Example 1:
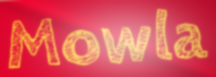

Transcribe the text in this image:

Mowla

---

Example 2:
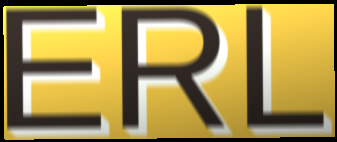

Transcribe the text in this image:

ERL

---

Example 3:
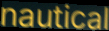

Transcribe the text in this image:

nautical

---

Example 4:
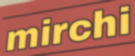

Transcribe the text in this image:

mirchi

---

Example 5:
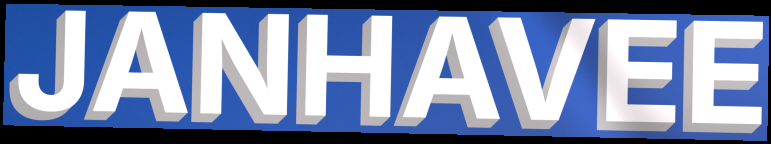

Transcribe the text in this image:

JANHAVEE